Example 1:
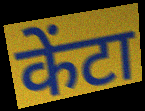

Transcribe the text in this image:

केंटा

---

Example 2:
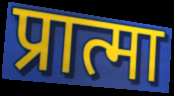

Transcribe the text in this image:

प्रात्मा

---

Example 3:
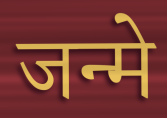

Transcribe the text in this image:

जन्मे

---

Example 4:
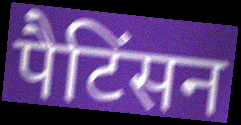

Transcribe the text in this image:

पैटिंसन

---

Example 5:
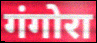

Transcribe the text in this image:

गंगोरा